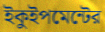
ইকুইপমেন্টের